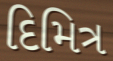
દિમિત્ર